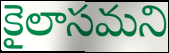
కైలాసమని